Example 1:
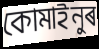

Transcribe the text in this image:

কোমাইনুৰ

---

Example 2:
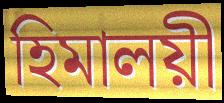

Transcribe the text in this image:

হিমালয়ী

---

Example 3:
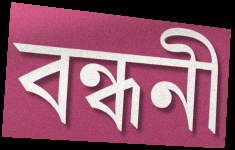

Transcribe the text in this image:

বন্ধনী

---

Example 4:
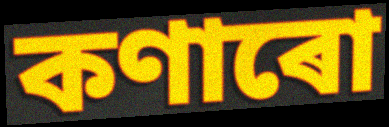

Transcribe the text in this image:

কণাৰো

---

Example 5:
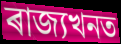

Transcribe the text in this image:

ৰাজ্যখনত